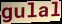
gulal